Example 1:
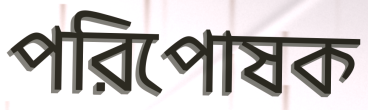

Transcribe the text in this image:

পরিপোষক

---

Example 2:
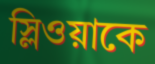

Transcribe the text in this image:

স্লিওয়াকে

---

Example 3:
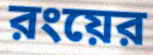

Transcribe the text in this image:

রংয়ের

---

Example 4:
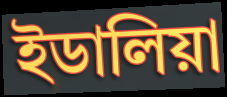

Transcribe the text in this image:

ইডালিয়া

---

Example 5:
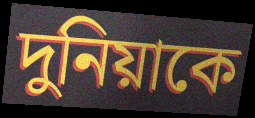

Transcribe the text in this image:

দুনিয়াকে